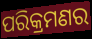
ପରିକ୍ରମଣର